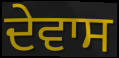
ਦੇਵਾਸ